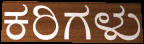
ಕರಿಗಳು